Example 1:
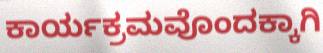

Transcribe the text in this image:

ಕಾರ್ಯಕ್ರಮವೊಂದಕ್ಕಾಗಿ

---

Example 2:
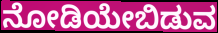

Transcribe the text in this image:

ನೋಡಿಯೇಬಿಡುವ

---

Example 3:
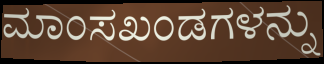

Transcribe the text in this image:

ಮಾಂಸಖಂಡಗಳನ್ನು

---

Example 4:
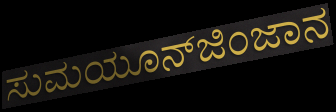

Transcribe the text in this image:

ಸುಮಯೂನ್‍ಜಿಂಜಾನ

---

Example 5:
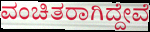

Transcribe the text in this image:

ವಂಚಿತರಾಗಿದ್ದೇವೆ